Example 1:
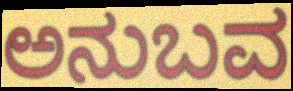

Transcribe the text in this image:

ಅನುಬವ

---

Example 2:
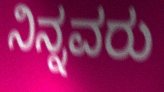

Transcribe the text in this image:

ನಿನ್ನವರು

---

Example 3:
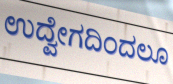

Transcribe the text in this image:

ಉದ್ವೇಗದಿಂದಲೂ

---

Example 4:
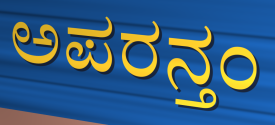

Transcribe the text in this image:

ಅಪರನ್ತಂ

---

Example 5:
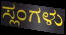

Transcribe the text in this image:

ಸ್ಲಂಗಳು